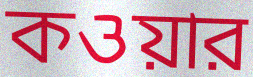
কওয়ার